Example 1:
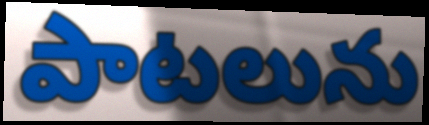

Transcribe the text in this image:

పాటలును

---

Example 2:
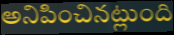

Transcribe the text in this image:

అనిపించినట్లుంది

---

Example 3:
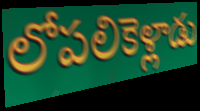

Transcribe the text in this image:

లోపలికెళ్లాడు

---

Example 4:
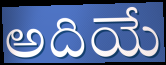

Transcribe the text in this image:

అదియే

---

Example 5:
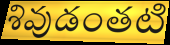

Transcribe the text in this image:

శివుడంతటి